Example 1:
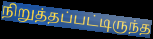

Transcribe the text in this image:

நிறுத்தப்பட்டிருந்த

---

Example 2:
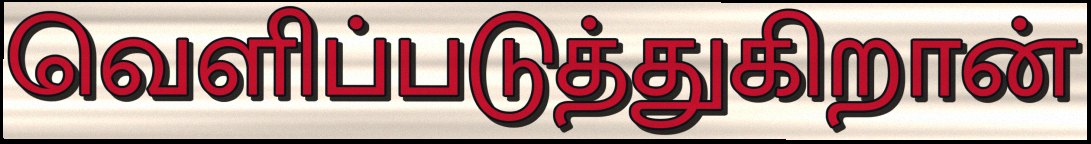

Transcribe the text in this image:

வெளிப்படுத்துகிறான்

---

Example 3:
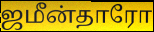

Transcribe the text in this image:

ஜமீன்தாரோ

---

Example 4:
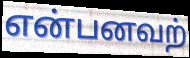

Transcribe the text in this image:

என்பனவற்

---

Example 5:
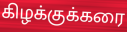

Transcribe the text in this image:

கிழக்குக்கரை